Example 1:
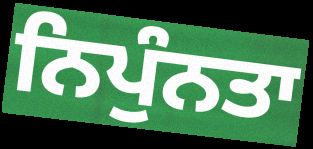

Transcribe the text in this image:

ਨਿਪੁੰਨਤਾ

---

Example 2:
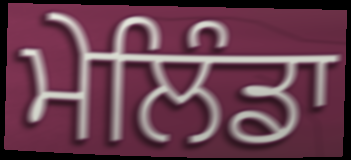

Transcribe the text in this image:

ਮੇਲਿੰਡਾ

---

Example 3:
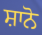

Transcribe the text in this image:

ਸ਼ਾਨੋ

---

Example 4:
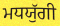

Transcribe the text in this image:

ਮਧਯੁੱਗੀ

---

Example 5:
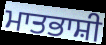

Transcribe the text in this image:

ਮਾਤਭਾਸ਼ੀ